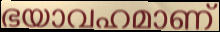
ഭയാവഹമാണ്